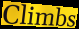
Climbs